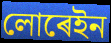
লোৰেইন